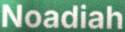
Noadiah